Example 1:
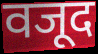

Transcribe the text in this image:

वजूद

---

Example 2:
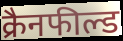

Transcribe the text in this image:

क्रैनफील्ड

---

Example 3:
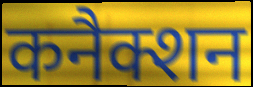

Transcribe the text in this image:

कनैक्शन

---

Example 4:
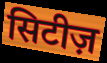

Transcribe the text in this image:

सिटीज़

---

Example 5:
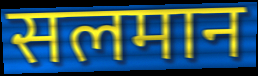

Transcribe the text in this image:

सलमान